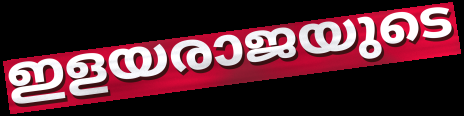
ഇളയരാജയുടെ